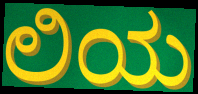
ಲಿಯ